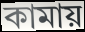
কামায়